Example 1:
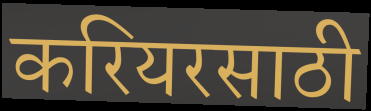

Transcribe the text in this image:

करियरसाठी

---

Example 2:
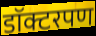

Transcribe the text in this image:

डॉक्टरपण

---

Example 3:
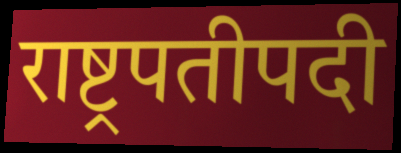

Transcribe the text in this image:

राष्ट्रपतीपदी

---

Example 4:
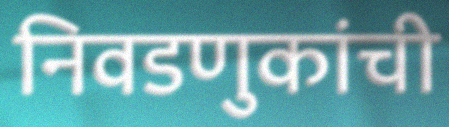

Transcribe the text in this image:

निवडणुकांची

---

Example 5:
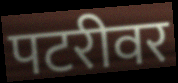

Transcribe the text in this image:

पटरीवर